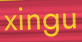
xingu